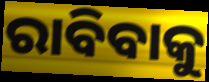
ରାବିବାକୁ